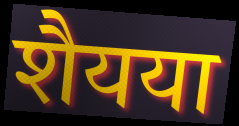
शैयया